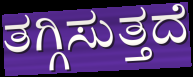
ತಗ್ಗಿಸುತ್ತದೆ